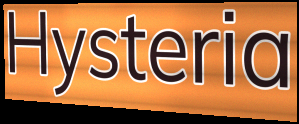
Hysteria